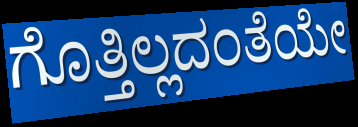
ಗೊತ್ತಿಲ್ಲದಂತೆಯೇ